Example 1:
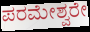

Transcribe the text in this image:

ಪರಮೇಶ್ವರೇ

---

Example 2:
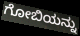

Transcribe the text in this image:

ಗೋಬಿಯನ್ನು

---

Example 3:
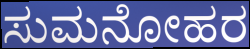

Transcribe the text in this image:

ಸುಮನೋಹರ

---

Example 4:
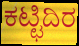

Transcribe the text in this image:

ಕಟ್ಟಿದಿರ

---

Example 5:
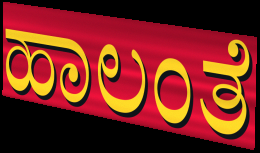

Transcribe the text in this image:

ಹಾಲಂತೆ